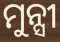
ମୁନ୍ସୀ